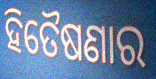
ହିତୈଷଣାର